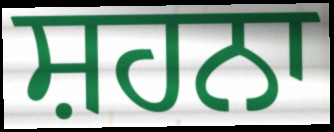
ਸ਼ਹਨਾ